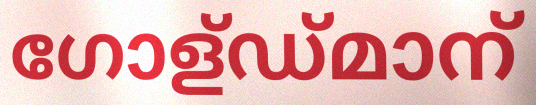
ഗോള്ഡ്മാന്